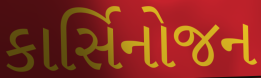
કાર્સિનોજન